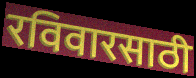
रविवारसाठी